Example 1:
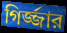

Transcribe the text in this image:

গির্জ্জার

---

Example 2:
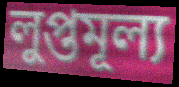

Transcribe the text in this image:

লুপ্তমূল্য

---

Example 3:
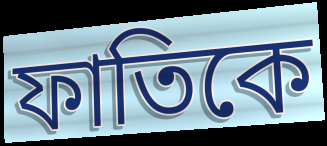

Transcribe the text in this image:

ফাতিকে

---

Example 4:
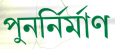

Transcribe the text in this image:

পুনর্নির্মাণ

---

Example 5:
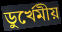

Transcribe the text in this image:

ডুর্খেমীয়